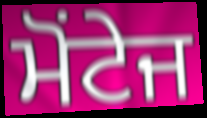
ਮੋਂਟੇਜ